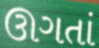
ઊગતાં